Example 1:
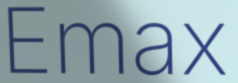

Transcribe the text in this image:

Emax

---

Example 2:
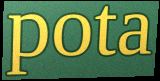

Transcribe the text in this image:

pota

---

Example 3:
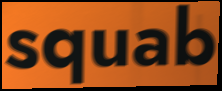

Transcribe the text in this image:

squab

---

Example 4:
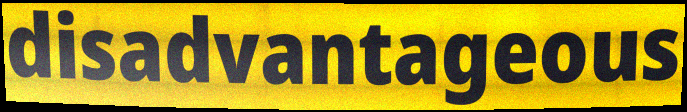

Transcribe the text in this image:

disadvantageous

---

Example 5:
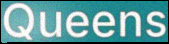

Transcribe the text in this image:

Queens